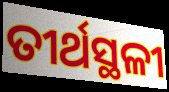
ତୀର୍ଥସ୍ଥଳୀ